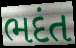
ભદંત